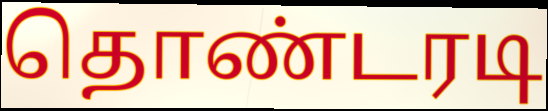
தொண்டரடி